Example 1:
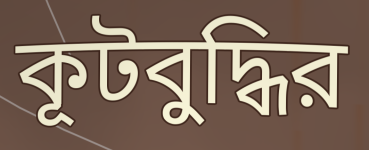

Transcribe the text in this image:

কূটবুদ্ধির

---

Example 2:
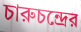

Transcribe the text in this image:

চারুচন্দ্রের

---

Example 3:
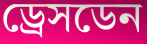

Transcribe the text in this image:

ড্রেসডেন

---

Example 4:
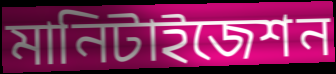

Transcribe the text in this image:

মানিটাইজেশন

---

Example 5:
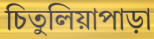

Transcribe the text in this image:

চিতুলিয়াপাড়া